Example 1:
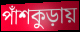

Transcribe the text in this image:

পাঁশকুড়ায়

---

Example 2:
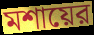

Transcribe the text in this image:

মশায়ের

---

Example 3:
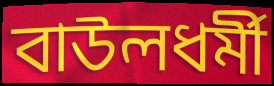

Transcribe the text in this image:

বাউলধর্মী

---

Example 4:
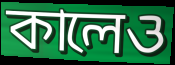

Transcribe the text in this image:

কালেও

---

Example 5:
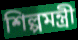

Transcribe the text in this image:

শিল্পমন্ত্রী